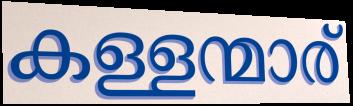
കള്ളന്മാര്